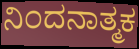
ನಿಂದನಾತ್ಮಕ